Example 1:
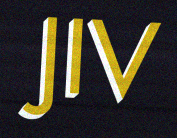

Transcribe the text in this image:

JIV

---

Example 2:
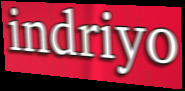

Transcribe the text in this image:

indriyo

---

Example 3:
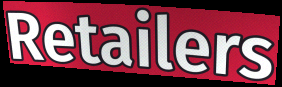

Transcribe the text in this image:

Retailers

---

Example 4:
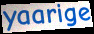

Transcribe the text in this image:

yaarige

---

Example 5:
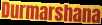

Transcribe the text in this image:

Durmarshana